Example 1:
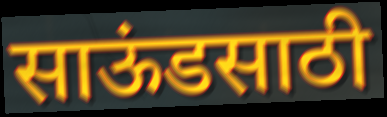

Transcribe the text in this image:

साऊंडसाठी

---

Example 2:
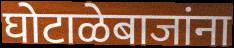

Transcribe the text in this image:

घोटाळेबाजांना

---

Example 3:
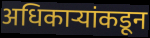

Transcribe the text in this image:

अधिकाऱ्यांकडून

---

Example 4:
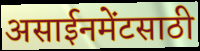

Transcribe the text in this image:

असाईनमेंटसाठी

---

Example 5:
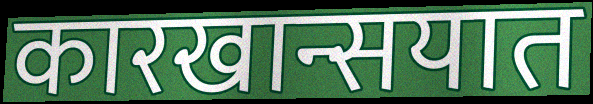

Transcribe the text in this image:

कारखान्सयात